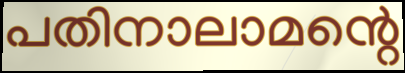
പതിനാലാമന്റെ